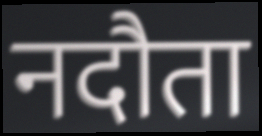
नदौता